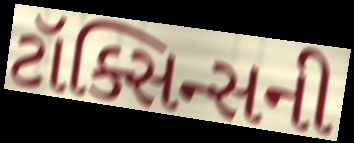
ટૉક્સિન્સની